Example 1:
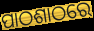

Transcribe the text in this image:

ପାଠଶାଠରେ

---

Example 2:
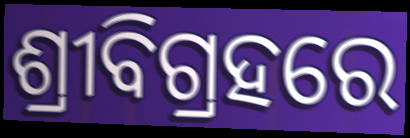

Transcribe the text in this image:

ଶ୍ରୀବିଗ୍ରହରେ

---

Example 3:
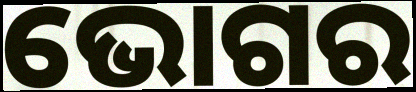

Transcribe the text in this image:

ଭୋଗର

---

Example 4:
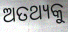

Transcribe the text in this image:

ଅତଥ୍ୟକୁ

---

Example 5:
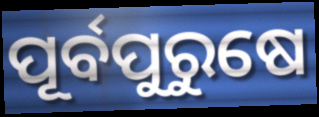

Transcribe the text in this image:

ପୂର୍ବପୁରୁଷେ